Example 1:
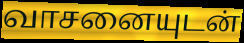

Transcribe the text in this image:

வாசனையுடன்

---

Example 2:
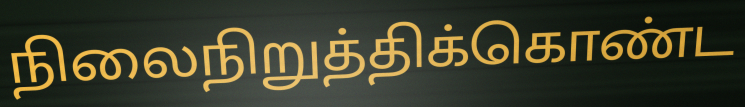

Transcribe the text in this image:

நிலைநிறுத்திக்கொண்ட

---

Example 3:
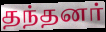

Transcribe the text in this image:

தந்தனர்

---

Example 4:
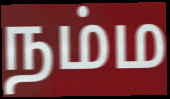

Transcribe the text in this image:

நம்ம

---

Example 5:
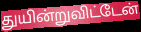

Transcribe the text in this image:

துயின்றுவிட்டேன்